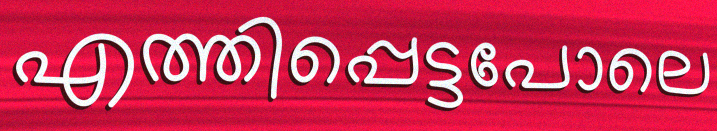
എത്തിപ്പെട്ടപോലെ